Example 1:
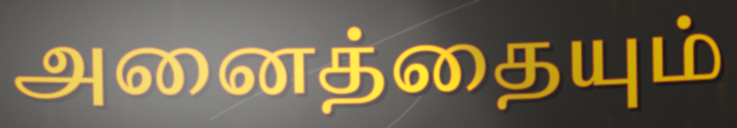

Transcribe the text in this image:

அனைத்தையும்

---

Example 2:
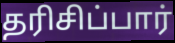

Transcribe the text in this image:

தரிசிப்பார்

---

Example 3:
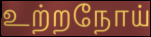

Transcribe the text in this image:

உற்றநோய்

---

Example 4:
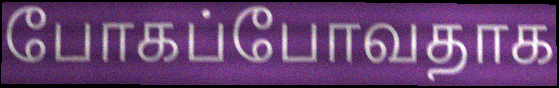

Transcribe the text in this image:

போகப்போவதாக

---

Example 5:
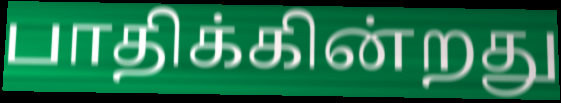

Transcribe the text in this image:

பாதிக்கின்றது